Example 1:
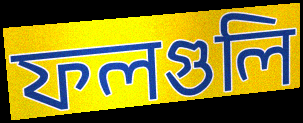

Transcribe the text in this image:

ফলগুলি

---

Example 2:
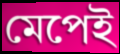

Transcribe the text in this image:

মেপেই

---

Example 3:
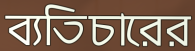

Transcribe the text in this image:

ব্যতিচারের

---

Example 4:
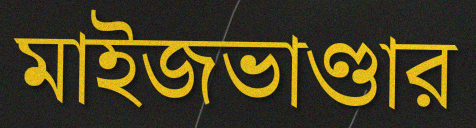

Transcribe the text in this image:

মাইজভাণ্ডার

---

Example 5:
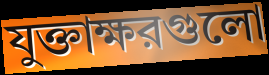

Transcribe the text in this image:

যুক্তাক্ষরগুলো